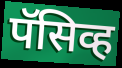
पॅसिव्ह